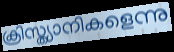
ക്രിസ്ത്യാനികളെന്നു